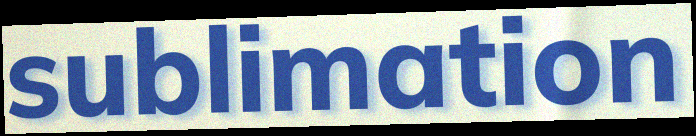
sublimation